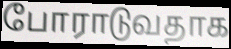
போராடுவதாக